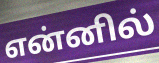
என்னில்